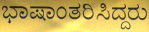
ಭಾಷಾಂತರಿಸಿದ್ದರು